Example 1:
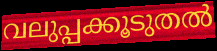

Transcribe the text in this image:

വലുപ്പക്കൂടുതൽ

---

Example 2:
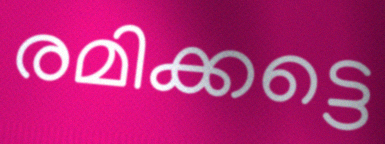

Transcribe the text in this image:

രമിക്കട്ടെ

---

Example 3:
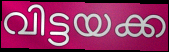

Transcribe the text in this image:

വിട്ടയക്ക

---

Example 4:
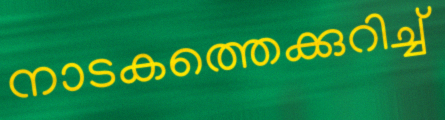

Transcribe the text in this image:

നാടകത്തെക്കുറിച്ച്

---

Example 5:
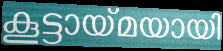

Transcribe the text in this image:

കൂട്ടായ്മയായി